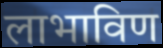
लाभाविण